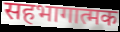
सहभागात्मक